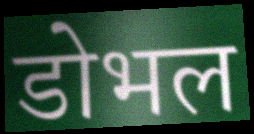
डोभल